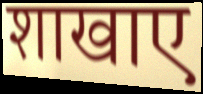
शाखाए